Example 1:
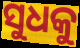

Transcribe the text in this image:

ସୁଧକୁ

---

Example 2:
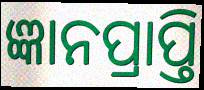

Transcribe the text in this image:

ଜ୍ଞାନପ୍ରାପ୍ତି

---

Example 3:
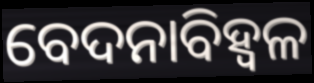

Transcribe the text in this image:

ବେଦନାବିହ୍ୱଳ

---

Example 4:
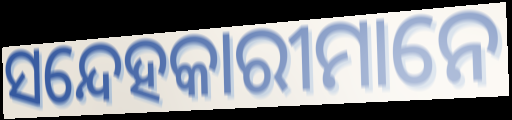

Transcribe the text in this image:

ସନ୍ଦେହକାରୀମାନେ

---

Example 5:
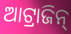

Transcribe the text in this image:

ଆଟ୍ରାଜିନ୍